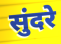
सुंदरे